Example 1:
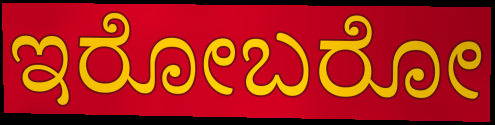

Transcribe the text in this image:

ಇರೋಬರೋ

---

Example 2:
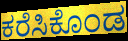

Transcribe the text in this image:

ಕರೆಸಿಕೊಂಡ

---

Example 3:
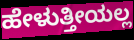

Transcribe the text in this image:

ಹೇಳುತ್ತೀಯಲ್ಲ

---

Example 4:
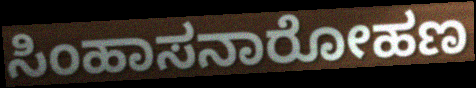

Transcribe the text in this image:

ಸಿಂಹಾಸನಾರೋಹಣ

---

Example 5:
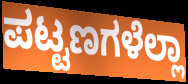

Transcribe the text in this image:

ಪಟ್ಟಣಗಳೆಲ್ಲಾ